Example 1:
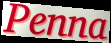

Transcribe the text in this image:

Penna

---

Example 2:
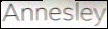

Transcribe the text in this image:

Annesley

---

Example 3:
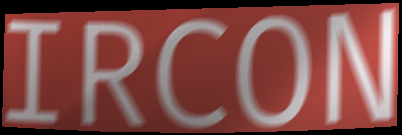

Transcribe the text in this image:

IRCON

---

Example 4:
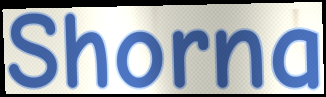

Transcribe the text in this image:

Shorna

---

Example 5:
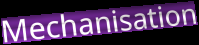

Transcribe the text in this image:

Mechanisation